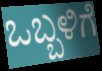
ಒಬ್ಬಳಿಗೆ